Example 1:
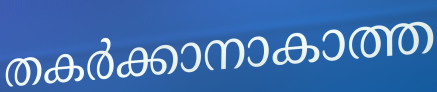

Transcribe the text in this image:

തകർക്കാനാകാത്ത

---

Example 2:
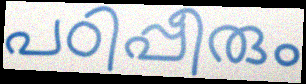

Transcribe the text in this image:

പഠിപ്പീരും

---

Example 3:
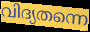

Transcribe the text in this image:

വിദ്യതന്നെ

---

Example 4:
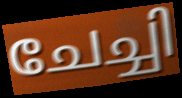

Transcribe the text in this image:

ചേച്ചി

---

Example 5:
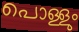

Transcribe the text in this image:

പൊള്ളും